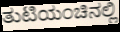
ತುಟಿಯಂಚಿನಲ್ಲಿ